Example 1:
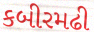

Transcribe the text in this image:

કબીરમઢી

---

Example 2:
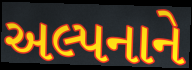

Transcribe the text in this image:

અલ્પનાને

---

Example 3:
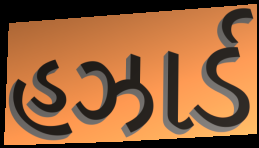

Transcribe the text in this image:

હઝાર્ડ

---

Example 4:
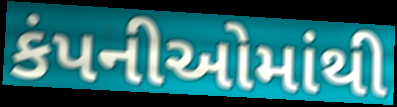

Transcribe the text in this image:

કંપનીઓમાંથી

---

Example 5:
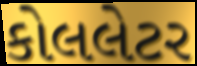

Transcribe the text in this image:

કોલલેટર